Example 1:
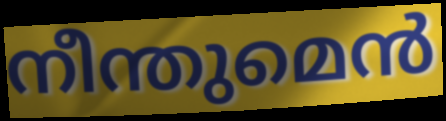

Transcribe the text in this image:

നീന്തുമെൻ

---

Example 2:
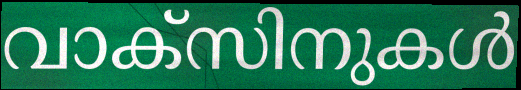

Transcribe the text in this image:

വാക്സിനുകൾ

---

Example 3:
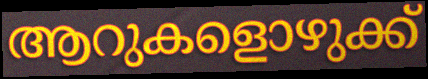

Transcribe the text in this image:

ആറുകളൊഴുക്ക്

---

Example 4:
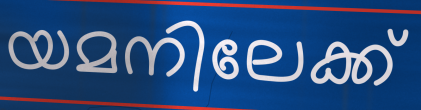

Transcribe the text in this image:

യമനിലേക്ക്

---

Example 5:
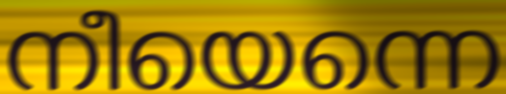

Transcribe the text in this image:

നീയെന്നെ